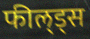
फील्ड्स